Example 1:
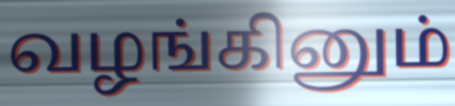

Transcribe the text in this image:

வழங்கினும்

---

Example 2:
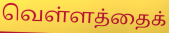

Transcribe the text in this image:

வெள்ளத்தைக்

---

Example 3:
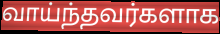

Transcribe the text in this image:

வாய்ந்தவர்களாக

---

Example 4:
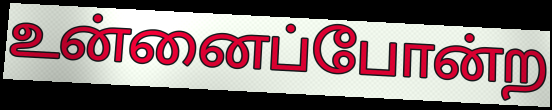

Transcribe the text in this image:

உன்னைப்போன்ற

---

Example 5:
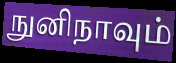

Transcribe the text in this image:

நுனிநாவும்